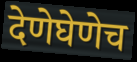
देणेघेणेच